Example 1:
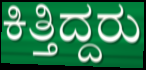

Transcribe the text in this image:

ಕಿತ್ತಿದ್ದರು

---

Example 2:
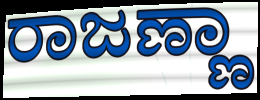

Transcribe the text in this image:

ರಾಜಣ್ಣಾ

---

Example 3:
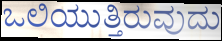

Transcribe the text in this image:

ಒಲಿಯುತ್ತಿರುವುದು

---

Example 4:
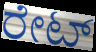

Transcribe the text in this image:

ರೇಟ್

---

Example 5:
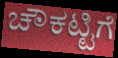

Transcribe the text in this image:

ಚೌಕಟ್ಟಿಗೆ